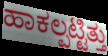
ಹಾಕಲ್ಪಟ್ಟಿತ್ತು